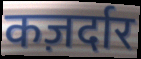
कज़र्दार